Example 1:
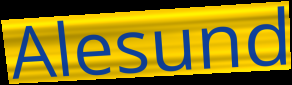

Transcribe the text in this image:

Alesund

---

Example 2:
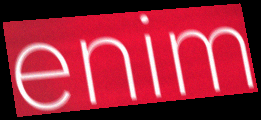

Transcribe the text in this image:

enim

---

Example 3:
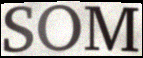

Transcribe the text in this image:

SOM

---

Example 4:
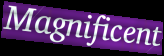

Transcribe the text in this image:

Magnificent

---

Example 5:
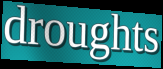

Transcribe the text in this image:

droughts